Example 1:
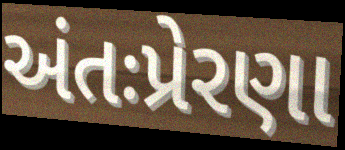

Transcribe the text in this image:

અંતઃપ્રેરણા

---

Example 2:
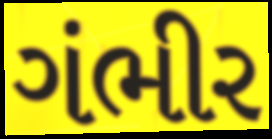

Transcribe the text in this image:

ગંભીર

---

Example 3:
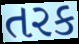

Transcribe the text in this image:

તરક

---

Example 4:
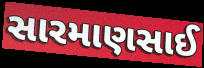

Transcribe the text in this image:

સારમાણસાઈ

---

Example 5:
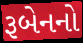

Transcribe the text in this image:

રૂબેનનો